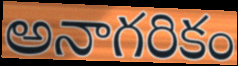
అనాగరికం